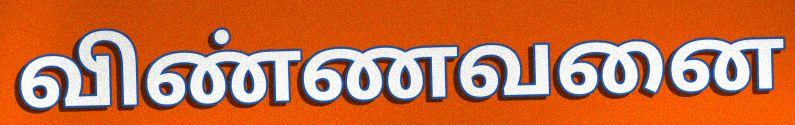
விண்ணவனை